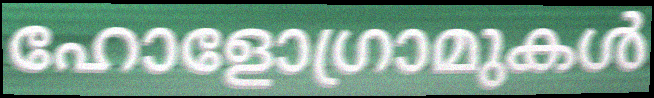
ഹോളോഗ്രാമുകൾ